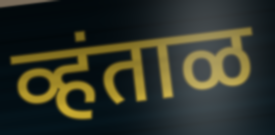
व्हंताळ